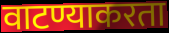
वाटण्याकरता